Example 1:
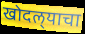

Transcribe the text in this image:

खोदल्याचा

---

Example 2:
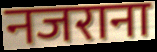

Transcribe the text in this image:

नजराना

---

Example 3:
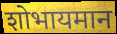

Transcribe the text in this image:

शोभायमान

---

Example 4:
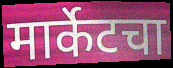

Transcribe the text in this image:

मार्केटचा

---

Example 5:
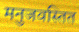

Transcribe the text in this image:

मनुजवस्तित